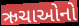
ઋચાઓનો